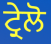
ਟ੍ਰੇਲੋ